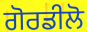
ਗੋਰਡੀਲੋ